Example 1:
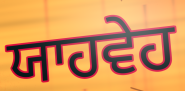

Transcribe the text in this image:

ਯਾਹਵੇਹ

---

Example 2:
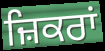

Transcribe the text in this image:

ਜ਼ਿਕਰਾਂ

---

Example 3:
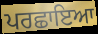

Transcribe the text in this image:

ਪਰਛਾਇਆ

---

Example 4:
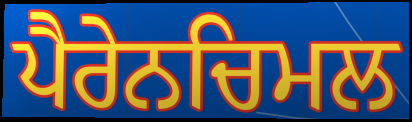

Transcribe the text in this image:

ਪੈਰੇਨਚਿਮਲ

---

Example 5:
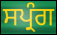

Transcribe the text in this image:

ਸਪ੍ਰੰਗ